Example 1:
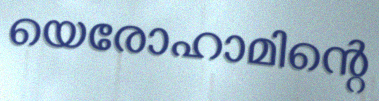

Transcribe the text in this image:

യെരോഹാമിന്റെ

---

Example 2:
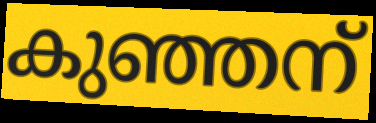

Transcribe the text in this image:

കുഞ്ഞന്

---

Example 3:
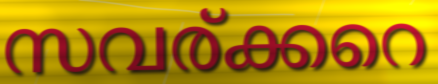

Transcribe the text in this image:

സവര്ക്കറെ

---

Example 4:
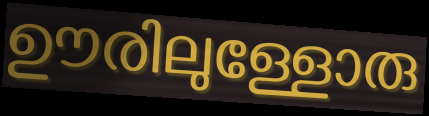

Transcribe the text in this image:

ഊരിലുള്ളോരു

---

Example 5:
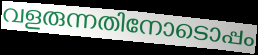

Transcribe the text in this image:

വളരുന്നതിനോടൊപ്പം